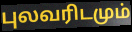
புலவரிடமும்